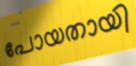
പോയതായി